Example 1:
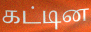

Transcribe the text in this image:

கட்டின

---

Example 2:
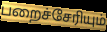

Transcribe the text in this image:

பறைச்சேரியும்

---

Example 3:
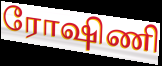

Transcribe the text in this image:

ரோஷிணி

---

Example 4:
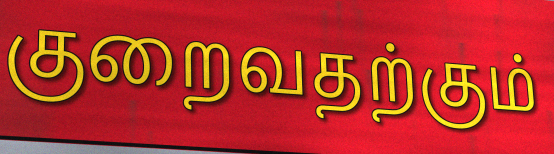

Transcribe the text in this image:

குறைவதற்கும்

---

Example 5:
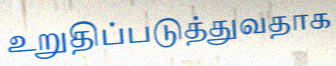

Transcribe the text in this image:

உறுதிப்படுத்துவதாக